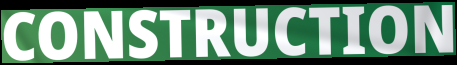
CONSTRUCTION